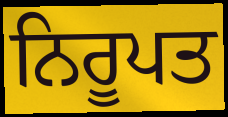
ਨਿਰੂਪਤ